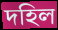
দহিল